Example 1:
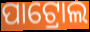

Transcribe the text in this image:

ପାଟ୍ରୋଲ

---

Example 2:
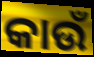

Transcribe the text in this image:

କାଉଁ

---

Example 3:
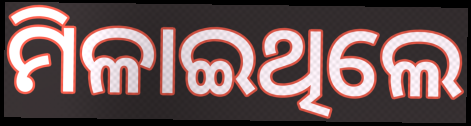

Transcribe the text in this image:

ମିଳାଇଥିଲେ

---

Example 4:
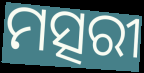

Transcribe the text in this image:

ମତ୍ସରୀ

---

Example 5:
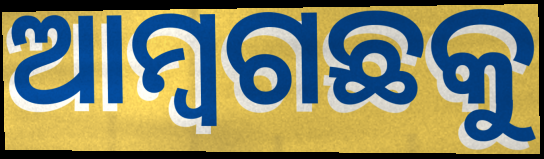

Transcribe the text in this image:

ଆମ୍ବଗଛକୁ